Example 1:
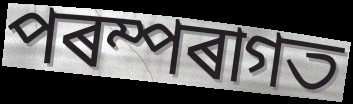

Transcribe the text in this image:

পৰম্পৰাগত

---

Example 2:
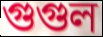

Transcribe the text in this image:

গুগুল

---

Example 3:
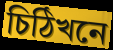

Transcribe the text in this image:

চিঠিখনে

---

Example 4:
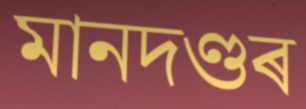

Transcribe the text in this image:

মানদণ্ডৰ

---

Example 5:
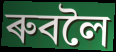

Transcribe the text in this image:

ৰুবলৈ